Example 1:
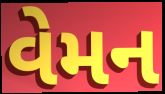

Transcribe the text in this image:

વેમન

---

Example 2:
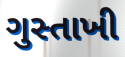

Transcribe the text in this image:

ગુસ્તાખી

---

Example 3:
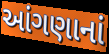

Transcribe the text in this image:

આંગણાનાં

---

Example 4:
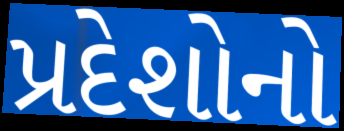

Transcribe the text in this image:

પ્રદેશોનો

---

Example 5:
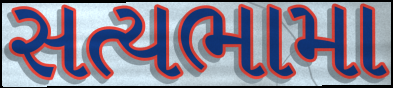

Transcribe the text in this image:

સત્યભામા